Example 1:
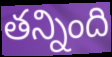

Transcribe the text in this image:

తన్నింది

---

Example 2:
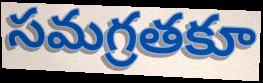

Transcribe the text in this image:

సమగ్రతకూ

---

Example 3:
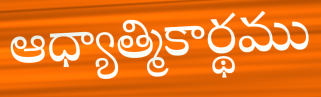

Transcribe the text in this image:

ఆధ్యాత్మికార్థము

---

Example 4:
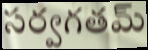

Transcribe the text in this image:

సర్వగతమ్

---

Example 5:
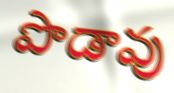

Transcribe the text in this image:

పొడావు